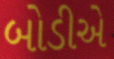
બોડીએ